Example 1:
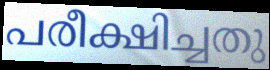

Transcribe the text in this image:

പരീക്ഷിച്ചതു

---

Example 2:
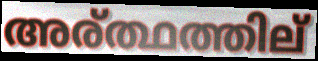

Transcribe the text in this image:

അര്ത്ഥത്തില്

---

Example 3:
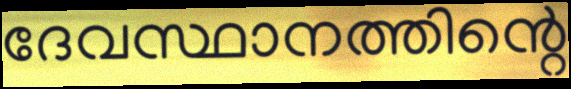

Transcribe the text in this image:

ദേവസ്ഥാനത്തിന്റെ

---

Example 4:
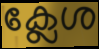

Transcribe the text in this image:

ക്ലേശ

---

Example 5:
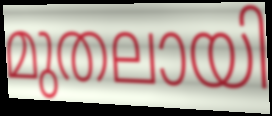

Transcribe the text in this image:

മുതലായി